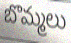
బొమ్మలు